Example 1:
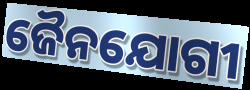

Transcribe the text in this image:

ଜୈନଯୋଗୀ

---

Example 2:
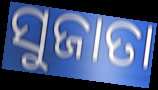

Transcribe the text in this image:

ସୁଜାତା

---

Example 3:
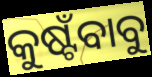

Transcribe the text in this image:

କୁଷ୍ଟଁବାବୁ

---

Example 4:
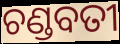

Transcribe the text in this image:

ଚଣ୍ଡବତୀ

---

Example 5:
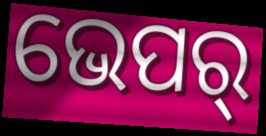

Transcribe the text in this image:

ଭେପର୍